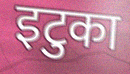
इटुका